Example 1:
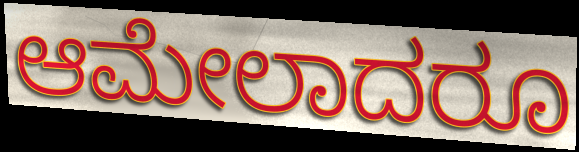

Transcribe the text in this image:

ಆಮೇಲಾದರೂ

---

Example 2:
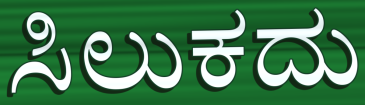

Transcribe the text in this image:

ಸಿಲುಕದು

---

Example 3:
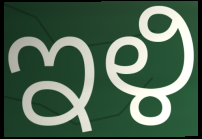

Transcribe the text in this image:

ಇಳಿ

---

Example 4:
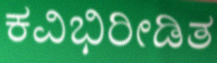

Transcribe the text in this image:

ಕವಿಭಿರೀಡಿತ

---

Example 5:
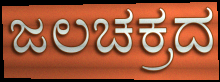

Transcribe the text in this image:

ಜಲಚಕ್ರದ